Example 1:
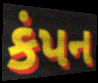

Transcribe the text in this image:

કંપન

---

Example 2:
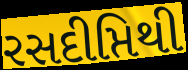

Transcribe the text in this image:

રસદીપ્તિથી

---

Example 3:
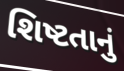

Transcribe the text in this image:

શિષ્ટતાનું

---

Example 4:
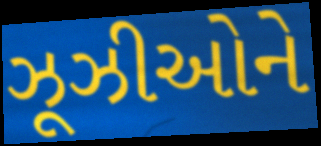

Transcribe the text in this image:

ઝૂઝીઓને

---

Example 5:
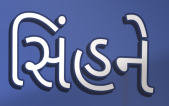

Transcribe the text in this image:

સિંહને